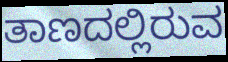
ತಾಣದಲ್ಲಿರುವ